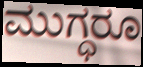
ಮುಗ್ಧರೂ